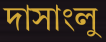
দাসাংলু